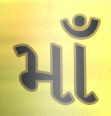
માઁ